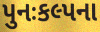
પુનઃકલ્પના